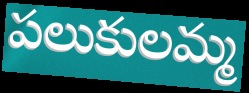
పలుకులమ్మ